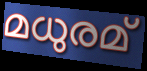
മധുരമ്